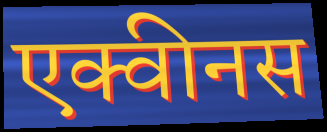
एक्वीनस